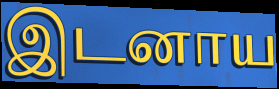
இடனாய